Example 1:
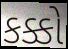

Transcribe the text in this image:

કક્કો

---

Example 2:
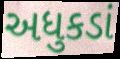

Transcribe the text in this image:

અધુકડાં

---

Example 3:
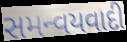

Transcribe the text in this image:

સમન્વયવાદી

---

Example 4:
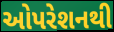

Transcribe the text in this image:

ઓપરેશનથી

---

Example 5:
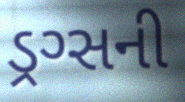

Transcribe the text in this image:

ડ્રગ્સની